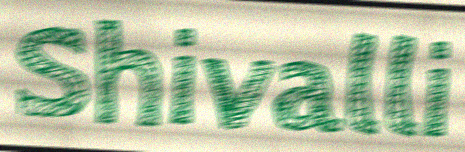
Shivalli